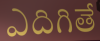
ఎదిగితే